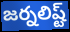
జర్నలిష్ట్